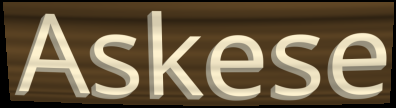
Askese